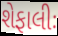
શેફાલીઃ